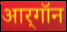
आर्‌गॉन